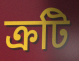
ক্রটি